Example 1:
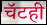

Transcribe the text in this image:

चॅटही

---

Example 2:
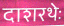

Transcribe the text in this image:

दाशरथेः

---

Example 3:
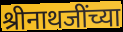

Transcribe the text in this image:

श्रीनाथजींच्या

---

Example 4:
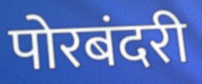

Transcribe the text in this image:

पोरबंदरी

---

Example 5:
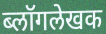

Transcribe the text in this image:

ब्लॉगलेखक